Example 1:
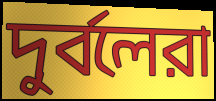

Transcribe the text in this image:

দুর্বলেরা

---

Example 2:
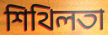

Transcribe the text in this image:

শিথিলতা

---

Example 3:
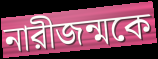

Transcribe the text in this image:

নারীজন্মকে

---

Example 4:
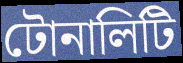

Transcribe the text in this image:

টোনালিটি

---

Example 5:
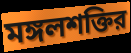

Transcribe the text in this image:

মঙ্গলশক্তির